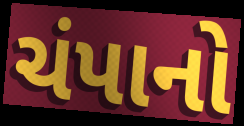
ચંપાનો